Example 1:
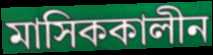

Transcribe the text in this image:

মাসিককালীন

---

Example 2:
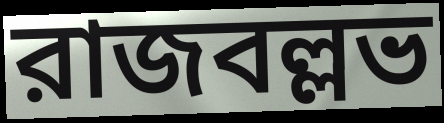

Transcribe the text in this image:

রাজবল্লভ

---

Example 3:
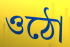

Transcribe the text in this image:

ওঠো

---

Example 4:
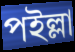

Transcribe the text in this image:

পইল্লা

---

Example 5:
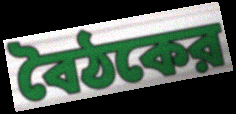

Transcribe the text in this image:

বৈঠকের